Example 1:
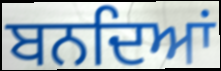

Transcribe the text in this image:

ਬਨਦਿਆਂ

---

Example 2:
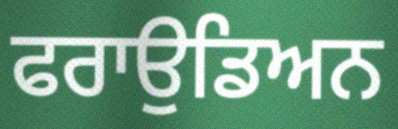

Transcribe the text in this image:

ਫਰਾਉਡਿਅਨ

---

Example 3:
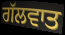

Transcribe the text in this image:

ਗੱਲਵਾਤ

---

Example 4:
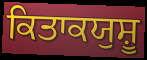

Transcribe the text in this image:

ਕਿਤਾਕਯੁਸ਼ੂ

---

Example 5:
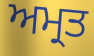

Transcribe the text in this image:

ਅਮ੍ਰਤ